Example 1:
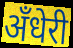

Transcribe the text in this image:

अँधेरी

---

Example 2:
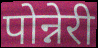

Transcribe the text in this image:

पोन्नेरी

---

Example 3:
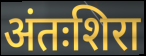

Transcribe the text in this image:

अंतःशिरा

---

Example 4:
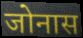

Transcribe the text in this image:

जोनास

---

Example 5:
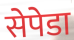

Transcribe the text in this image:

सेपेडा